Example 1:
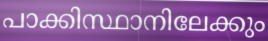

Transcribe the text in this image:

പാക്കിസ്ഥാനിലേക്കും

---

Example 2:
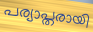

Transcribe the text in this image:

പര്യാപ്തരായി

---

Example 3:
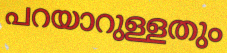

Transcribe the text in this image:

പറയാറുള്ളതും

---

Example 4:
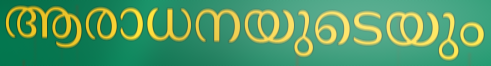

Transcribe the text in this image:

ആരാധനയുടെയും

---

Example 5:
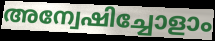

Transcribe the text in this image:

അന്വേഷിച്ചോളാം